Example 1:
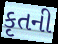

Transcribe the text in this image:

કૃતની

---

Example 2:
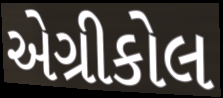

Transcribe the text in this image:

એગ્રીકોલ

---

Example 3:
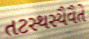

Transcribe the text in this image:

તટસ્થસ્યૈવૈતે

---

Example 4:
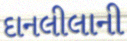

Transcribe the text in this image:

દાનલીલાની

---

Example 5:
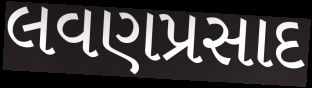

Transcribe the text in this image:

લવણપ્રસાદ